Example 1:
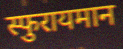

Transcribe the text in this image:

स्फुरायमान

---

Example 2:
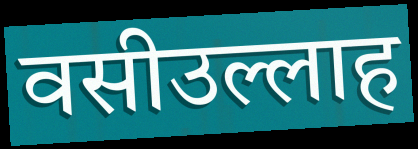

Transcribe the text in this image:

वसीउल्लाह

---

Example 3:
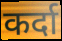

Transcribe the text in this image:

कर्दा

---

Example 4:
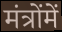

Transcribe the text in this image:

मंत्रोंमें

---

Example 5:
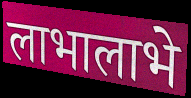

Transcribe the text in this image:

लाभालाभे